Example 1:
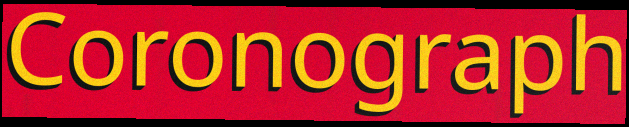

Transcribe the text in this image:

Coronograph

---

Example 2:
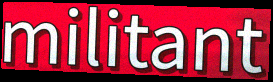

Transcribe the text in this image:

militant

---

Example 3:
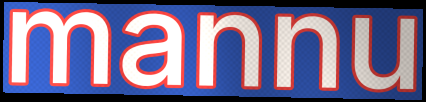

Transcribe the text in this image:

mannu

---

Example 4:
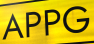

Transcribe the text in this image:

APPG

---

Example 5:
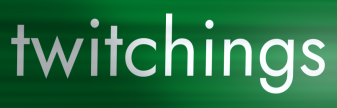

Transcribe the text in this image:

twitchings